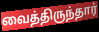
வைத்திருந்தார்